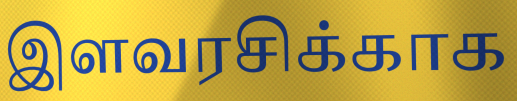
இளவரசிக்காக